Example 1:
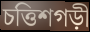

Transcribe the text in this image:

চত্তিশগড়ী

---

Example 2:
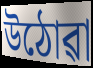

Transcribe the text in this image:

উঠোৱা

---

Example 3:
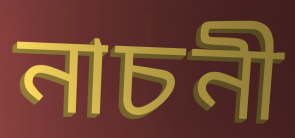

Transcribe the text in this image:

নাচনী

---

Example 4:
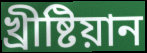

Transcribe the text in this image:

খ্ৰীষ্টিয়ান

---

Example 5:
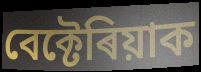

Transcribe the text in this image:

বেক্টেৰিয়াক